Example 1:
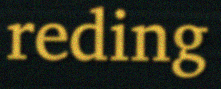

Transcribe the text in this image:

reding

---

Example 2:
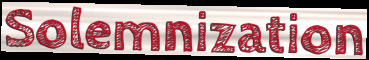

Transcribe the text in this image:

Solemnization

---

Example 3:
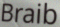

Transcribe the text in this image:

Braib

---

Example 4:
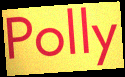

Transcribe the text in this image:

Polly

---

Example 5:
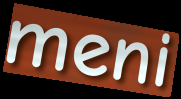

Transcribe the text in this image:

meni